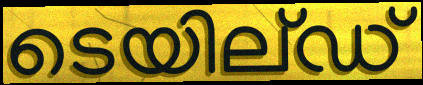
ടെയില്ഡ്